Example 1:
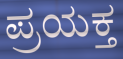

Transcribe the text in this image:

ಪ್ರಯಕ್ತ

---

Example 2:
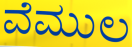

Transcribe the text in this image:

ವೆಮುಲ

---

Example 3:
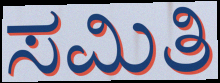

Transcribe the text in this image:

ಸಮಿತಿ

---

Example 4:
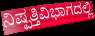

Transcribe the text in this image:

ನಿಷ್ಪತ್ತಿವಿಭಾಗದಲ್ಲಿ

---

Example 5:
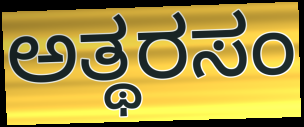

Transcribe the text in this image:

ಅತ್ಥರಸಂ